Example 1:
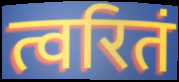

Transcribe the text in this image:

त्वरितं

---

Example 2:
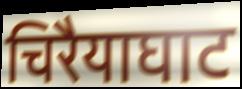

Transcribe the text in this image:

चिरैयाघाट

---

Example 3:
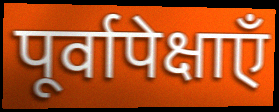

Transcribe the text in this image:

पूर्वापेक्षाएँ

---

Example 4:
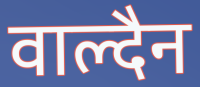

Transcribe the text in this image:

वाल्दैन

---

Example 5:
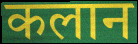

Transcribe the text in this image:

कलान